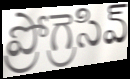
ప్రోగ్రెసివ్